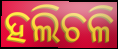
ହଲିଚଳି